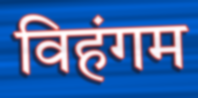
विहंगम